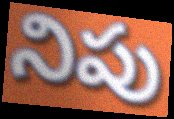
నిపు